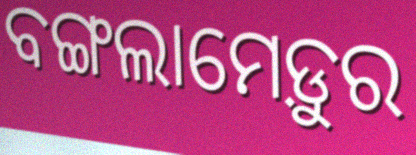
ବଙ୍ଗଲାମେଡ଼ୁର